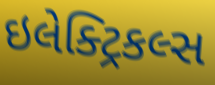
ઇલેક્ટ્રિકલ્સ